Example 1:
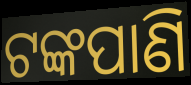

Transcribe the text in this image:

ଟଙ୍କପାଣି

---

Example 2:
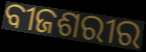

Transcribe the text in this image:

ବୀଜଶରୀର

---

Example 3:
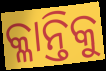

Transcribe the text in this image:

କ୍ଳାନ୍ତିକୁ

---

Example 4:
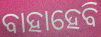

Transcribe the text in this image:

ବାହାହେବି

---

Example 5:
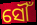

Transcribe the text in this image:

ସୌଁ